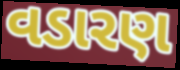
વડારણ